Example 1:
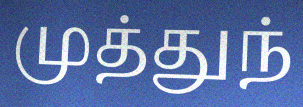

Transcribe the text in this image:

முத்துந்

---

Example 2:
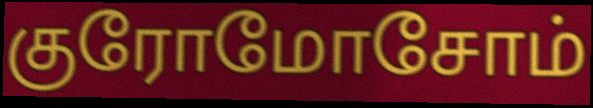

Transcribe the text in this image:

குரோமோசோம்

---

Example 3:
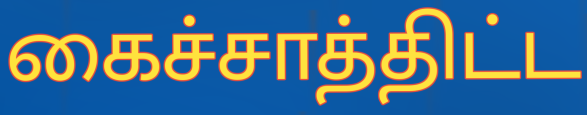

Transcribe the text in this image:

கைச்சாத்திட்ட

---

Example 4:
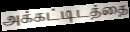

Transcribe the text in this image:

அக்கட்டிடத்தை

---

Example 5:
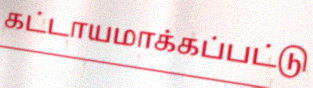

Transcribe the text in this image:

கட்டாயமாக்கப்பட்டு